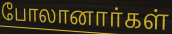
போலானார்கள்